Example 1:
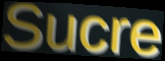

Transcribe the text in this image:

Sucre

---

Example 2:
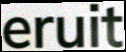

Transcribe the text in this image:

eruit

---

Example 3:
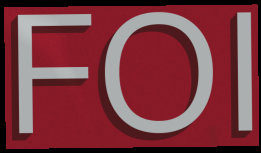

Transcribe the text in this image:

FOI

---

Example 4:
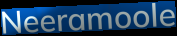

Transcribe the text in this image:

Neeramoole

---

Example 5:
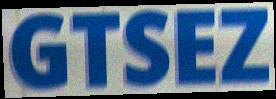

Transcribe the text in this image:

GTSEZ